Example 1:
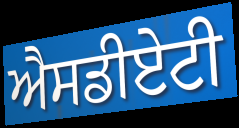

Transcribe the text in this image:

ਐਸਡੀਏਟੀ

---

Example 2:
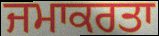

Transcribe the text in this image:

ਜਮਾਕਰਤਾ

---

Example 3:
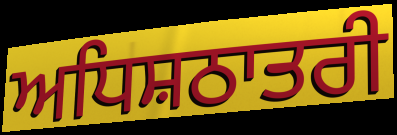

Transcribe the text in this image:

ਅਧਿਸ਼ਠਾਤਰੀ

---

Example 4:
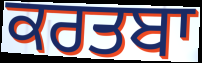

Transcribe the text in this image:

ਕਰਤਬਾ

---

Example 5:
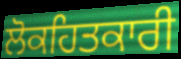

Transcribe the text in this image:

ਲੋਕਹਿਤਕਾਰੀ